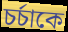
চর্চাকে